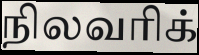
நிலவரிக்